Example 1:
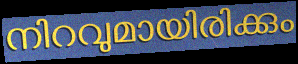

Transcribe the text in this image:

നിറവുമായിരിക്കും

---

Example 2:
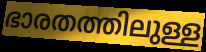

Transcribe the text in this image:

ഭാരതത്തിലുള്ള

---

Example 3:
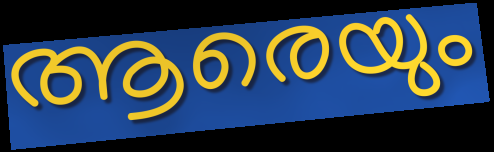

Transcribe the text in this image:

ആരെയും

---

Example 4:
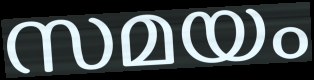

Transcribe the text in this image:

സമയം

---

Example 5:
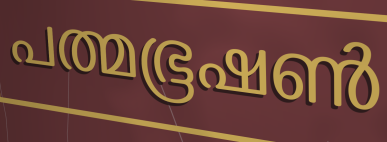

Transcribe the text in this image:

പത്മഭൂഷൺ